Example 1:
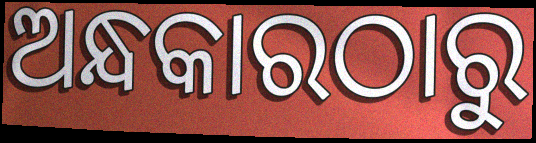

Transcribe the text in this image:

ଅନ୍ଧକାରଠାରୁ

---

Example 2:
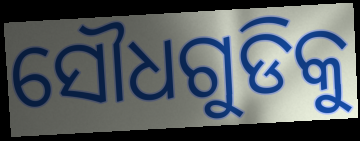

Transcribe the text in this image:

ସୌଧଗୁଡିକୁ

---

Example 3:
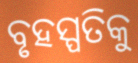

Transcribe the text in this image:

ବୃହସ୍ପତିକୁ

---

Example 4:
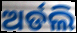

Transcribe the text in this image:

ଅର୍ଡଲି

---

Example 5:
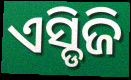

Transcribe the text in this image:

ଏସ୍ଡିଜି